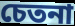
চেতনা